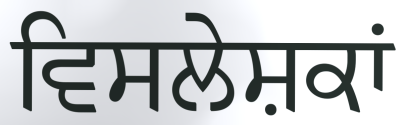
ਵਿਸਲੇਸ਼ਕਾਂ